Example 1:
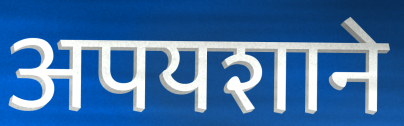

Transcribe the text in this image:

अपयशाने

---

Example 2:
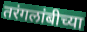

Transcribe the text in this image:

तरंगलांबीच्या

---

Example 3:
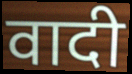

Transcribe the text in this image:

वादी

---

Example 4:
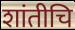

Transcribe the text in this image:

शांतीचि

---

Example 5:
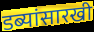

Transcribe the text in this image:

डब्यांसारखी